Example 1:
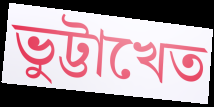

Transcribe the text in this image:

ভুট্টাখেত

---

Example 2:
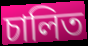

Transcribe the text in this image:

চালিত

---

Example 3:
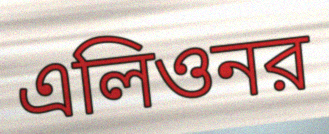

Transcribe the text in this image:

এলিওনর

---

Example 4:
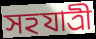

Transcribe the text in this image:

সহযাত্রী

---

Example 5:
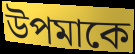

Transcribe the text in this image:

উপমাকে